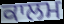
ਕਾਲਮ